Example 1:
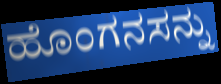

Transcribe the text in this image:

ಹೊಂಗನಸನ್ನು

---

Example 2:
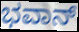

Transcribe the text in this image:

ಭವಾನ್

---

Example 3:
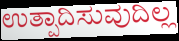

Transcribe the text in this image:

ಉತ್ಪಾದಿಸುವುದಿಲ್ಲ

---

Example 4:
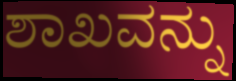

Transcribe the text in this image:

ಶಾಖವನ್ನು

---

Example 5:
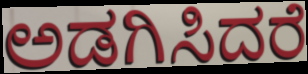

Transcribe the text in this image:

ಅಡಗಿಸಿದರೆ